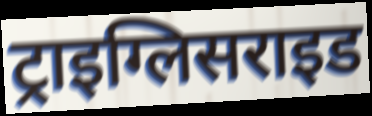
ट्राइग्लिसराइड